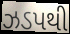
ઝડપથી